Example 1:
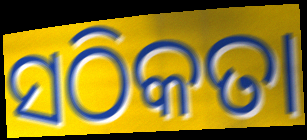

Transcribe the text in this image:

ସଠିକତା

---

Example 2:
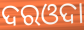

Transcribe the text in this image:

ଦରଓଦା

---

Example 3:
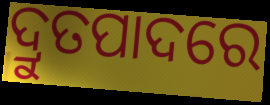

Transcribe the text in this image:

ଦ୍ରୁତପାଦରେ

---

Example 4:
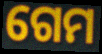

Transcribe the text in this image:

ଗେମ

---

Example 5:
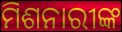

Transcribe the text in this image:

ମିଶନାରୀଙ୍କ